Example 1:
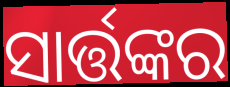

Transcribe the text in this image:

ସାର୍ତ୍ତଙ୍କର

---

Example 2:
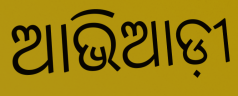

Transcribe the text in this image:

ଆଭିଆଡ଼ୀ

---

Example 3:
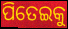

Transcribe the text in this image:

ପିତେଇକୁ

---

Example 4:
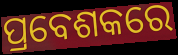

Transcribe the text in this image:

ପ୍ରବେଶକରେ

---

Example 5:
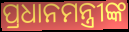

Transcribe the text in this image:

ପ୍ରଧାନମନ୍ତ୍ରୀଙ୍କ